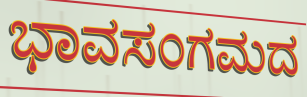
ಭಾವಸಂಗಮದ